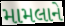
મામલાને